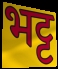
भट्ट